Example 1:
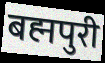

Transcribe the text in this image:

बह्मपुरी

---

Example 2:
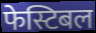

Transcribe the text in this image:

फेस्टिबल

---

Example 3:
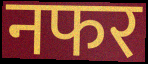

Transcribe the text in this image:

नफर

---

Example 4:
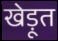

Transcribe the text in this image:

खेड़ूत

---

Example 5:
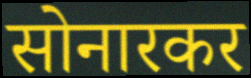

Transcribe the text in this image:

सोनारकर